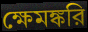
ক্ষেমঙ্করি